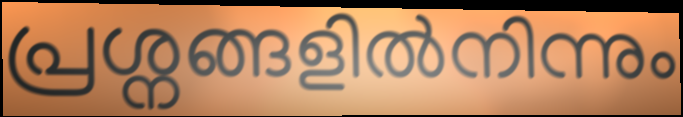
പ്രശ്നങ്ങളിൽനിന്നും